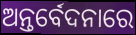
ଅନ୍ତର୍ବେଦନାରେ